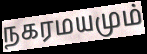
நகரமயமும்